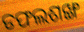
ଡଫଲଶଙ୍ଖ